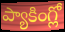
ప్యాకింగ్లో